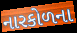
નારકોળના